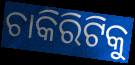
ଚାକିରିଟିକୁ